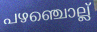
പഴഞ്ചൊല്ല്